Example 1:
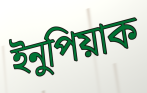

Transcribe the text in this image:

ইনুপিয়াক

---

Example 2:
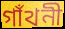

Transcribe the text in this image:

গাঁথনী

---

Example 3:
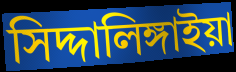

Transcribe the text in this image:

সিদ্দালিঙ্গাইয়া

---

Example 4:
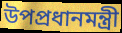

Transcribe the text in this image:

উপপ্রধানমন্ত্রী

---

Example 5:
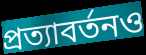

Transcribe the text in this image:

প্রত্যাবর্তনও